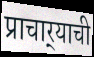
प्राचार्याची